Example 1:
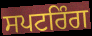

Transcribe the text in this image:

ਸਪਟਰਿੰਗ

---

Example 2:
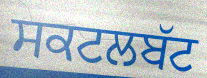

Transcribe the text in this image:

ਸਕਟਲਬੱਟ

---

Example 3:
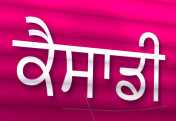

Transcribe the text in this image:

ਕੈਸਾਡੀ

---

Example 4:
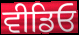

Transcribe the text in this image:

ਵੀਡਿਓ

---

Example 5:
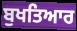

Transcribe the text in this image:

ਬੁਖਤਿਆਰ